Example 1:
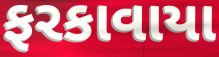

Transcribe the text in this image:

ફરકાવાયા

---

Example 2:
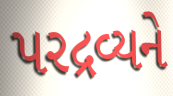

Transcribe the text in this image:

પરદ્રવ્યને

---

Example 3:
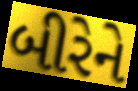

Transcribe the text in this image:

બીરેને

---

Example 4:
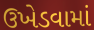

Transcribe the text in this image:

ઉખેડવામાં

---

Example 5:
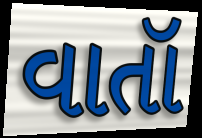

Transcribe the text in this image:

વાતૉ